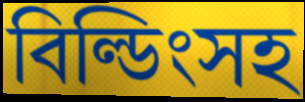
বিল্ডিংসহ